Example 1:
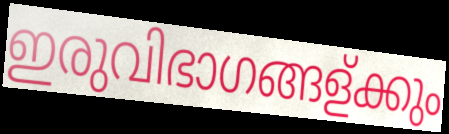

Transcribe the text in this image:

ഇരുവിഭാഗങ്ങള്ക്കും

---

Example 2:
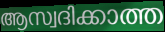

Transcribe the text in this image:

ആസ്വദിക്കാത്ത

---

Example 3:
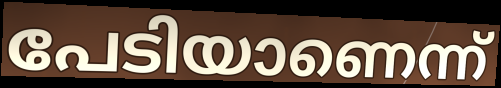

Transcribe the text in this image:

പേടിയാണെന്ന്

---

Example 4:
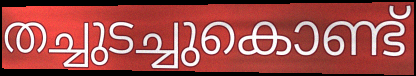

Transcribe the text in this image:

തച്ചുടച്ചുകൊണ്ട്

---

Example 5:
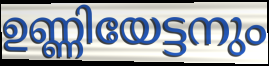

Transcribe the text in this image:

ഉണ്ണിയേട്ടനും